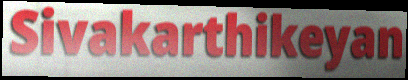
Sivakarthikeyan